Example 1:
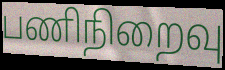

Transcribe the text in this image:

பணிநிறைவு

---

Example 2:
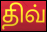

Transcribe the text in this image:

திவ்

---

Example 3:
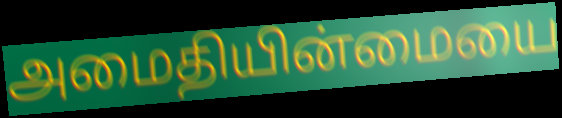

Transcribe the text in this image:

அமைதியின்மையை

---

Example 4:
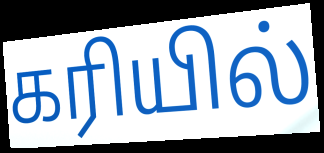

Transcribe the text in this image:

கரியில்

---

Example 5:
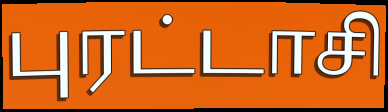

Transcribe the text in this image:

புரட்டாசி